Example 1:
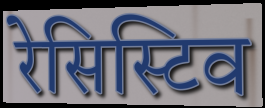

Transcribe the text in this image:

रेसिस्टिव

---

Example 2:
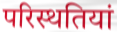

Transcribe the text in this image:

परिस्थतियां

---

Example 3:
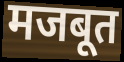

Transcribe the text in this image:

मजबूत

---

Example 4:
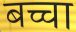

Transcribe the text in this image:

बच्चा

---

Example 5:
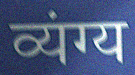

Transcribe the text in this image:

व्‍यंग्‍य